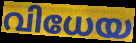
വിധേയ